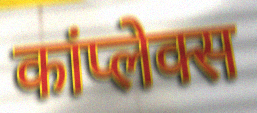
कांप्लेक्स